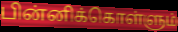
பின்னிக்கொள்ளும்